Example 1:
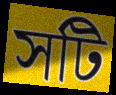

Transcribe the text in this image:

সটি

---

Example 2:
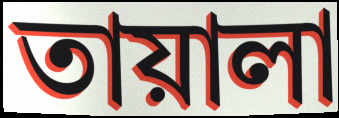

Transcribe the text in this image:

তায়ালা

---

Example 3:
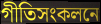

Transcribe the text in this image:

গীতিসংকলনে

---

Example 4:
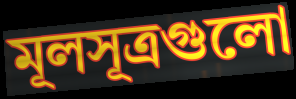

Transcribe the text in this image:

মূলসূত্রগুলো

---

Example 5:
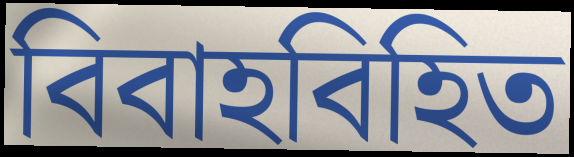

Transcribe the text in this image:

বিবাহবিহিত